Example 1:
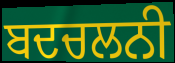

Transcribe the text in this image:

ਬਦਚਲਨੀ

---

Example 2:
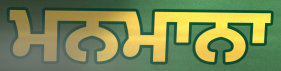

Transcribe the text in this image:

ਮਨਮਾਨਾ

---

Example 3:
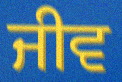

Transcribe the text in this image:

ਜੀਵ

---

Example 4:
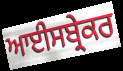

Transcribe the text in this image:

ਆਈਸਬ੍ਰੇਕਰ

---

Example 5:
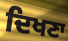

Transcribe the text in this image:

ਦਿਖਣਾ